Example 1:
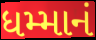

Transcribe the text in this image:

ધમ્માનં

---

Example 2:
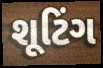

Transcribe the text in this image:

શૂટિંગ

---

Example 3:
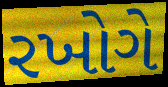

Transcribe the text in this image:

રખોગે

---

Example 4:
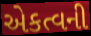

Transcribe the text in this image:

એકત્વની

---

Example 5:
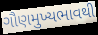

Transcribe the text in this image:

ગૌણમુખ્યભાવથી